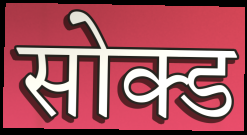
सोक्ड